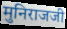
मुनिराजजी